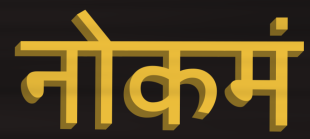
नोकमं